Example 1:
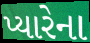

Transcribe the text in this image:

પ્યારેના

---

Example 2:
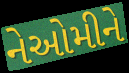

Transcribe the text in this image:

નેઓમીને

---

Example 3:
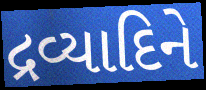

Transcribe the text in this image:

દ્રવ્યાદિને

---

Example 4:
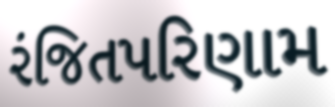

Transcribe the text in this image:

રંજિતપરિણામ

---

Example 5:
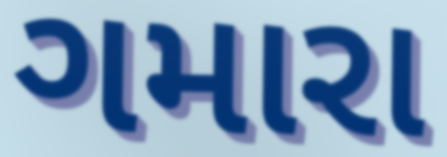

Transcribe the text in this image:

ગમારા